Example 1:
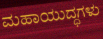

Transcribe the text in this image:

ಮಹಾಯುದ್ಧಗಳು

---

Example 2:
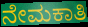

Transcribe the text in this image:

ನೇಮಕಾತಿ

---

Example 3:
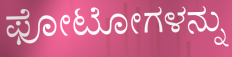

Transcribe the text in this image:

ಫೋಟೋಗಳನ್ನು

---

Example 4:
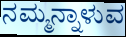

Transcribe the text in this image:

ನಮ್ಮನ್ನಾಳುವ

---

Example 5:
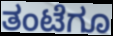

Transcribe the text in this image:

ತಂಟೆಗೂ